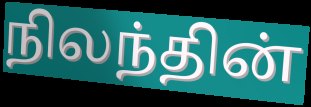
நிலந்தின்